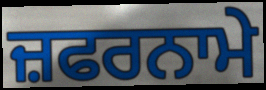
ਜ਼ਫਰਨਾਮੇ